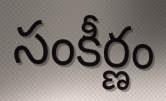
సంకీర్ణం